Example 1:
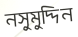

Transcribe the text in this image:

নসুমুদ্দিন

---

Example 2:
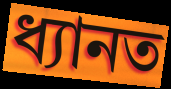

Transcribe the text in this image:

ধ্যানত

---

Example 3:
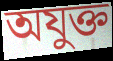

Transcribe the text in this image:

অযুক্ত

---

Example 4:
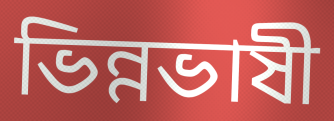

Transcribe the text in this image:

ভিন্নভাষী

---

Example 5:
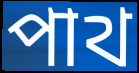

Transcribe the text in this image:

পাথ